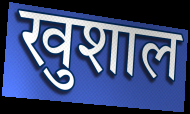
खुशाल